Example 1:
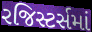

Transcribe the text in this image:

રજિસ્ટર્સમાં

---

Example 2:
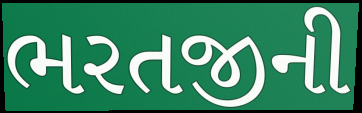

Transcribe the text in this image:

ભરતજીની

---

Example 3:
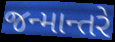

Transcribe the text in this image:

જન્માન્તરે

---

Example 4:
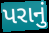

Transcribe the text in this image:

પરાનું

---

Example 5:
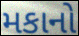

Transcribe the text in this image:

મકાનો